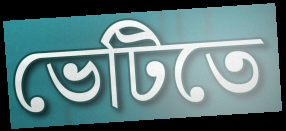
ভেটিতে